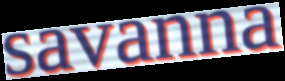
savanna